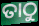
ତାଠୁ